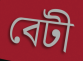
বেটী